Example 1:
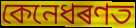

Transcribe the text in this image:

কেনেধৰণত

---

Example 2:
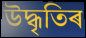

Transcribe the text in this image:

উদ্ধৃতিৰ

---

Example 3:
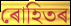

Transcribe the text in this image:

ৰোহিতৰ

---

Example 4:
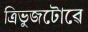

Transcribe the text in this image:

ত্ৰিভুজটোৱে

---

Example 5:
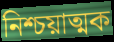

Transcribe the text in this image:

নিশ্চয়াত্মক